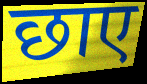
छाए